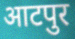
आटपुर